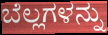
ಬೆಲ್ಲಗಳನ್ನು